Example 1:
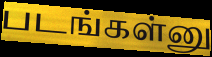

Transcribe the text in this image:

படங்கள்னு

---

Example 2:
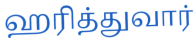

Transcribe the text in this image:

ஹரித்துவார்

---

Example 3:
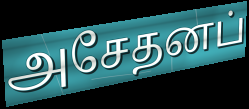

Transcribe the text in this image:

அசேதனப்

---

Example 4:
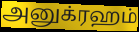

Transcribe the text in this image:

அனுக்ரஹம்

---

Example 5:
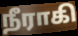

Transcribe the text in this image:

நீராகி